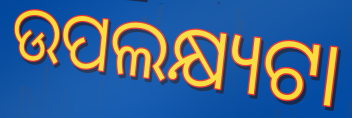
ଉପଲକ୍ଷ୍ୟଟା